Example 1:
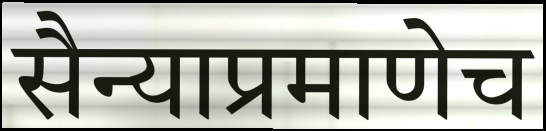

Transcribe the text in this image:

सैन्याप्रमाणेच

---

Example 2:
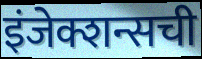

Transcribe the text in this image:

इंजेक्शन्सची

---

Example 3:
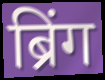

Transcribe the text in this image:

ब्रिंग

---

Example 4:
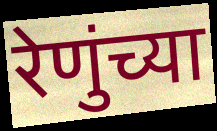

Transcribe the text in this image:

रेणुंच्या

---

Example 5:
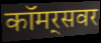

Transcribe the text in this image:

कॉमर्सवर